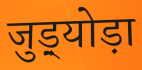
जुड़्योड़ा